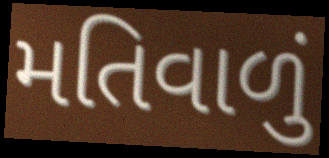
મતિવાળું